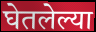
घेतलेल्या